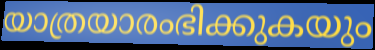
യാത്രയാരംഭിക്കുകയും